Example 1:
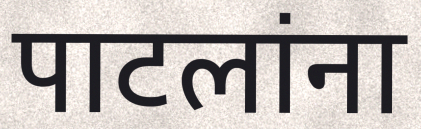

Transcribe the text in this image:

पाटलांना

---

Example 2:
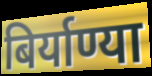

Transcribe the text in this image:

बिर्याण्या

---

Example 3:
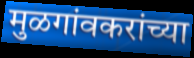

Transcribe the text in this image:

मुळगांवकरांच्या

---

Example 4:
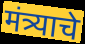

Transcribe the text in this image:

मंत्र्याचे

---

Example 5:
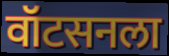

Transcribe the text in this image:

वॉटसनला